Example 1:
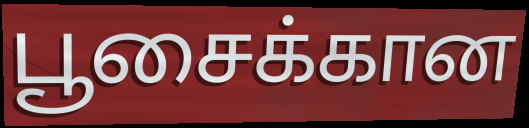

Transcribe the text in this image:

பூசைக்கான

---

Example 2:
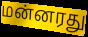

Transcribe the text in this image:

மன்னரது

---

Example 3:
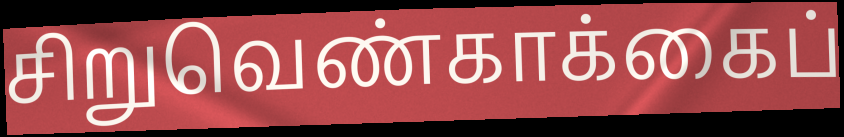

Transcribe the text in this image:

சிறுவெண்காக்கைப்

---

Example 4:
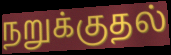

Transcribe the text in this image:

நறுக்குதல்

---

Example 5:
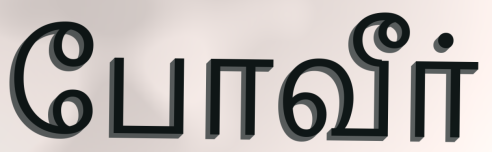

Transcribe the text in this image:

போவீர்